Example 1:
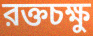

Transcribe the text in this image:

রক্তচক্ষু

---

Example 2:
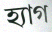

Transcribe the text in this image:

হ্যাগ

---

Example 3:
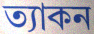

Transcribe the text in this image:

ত্যাকন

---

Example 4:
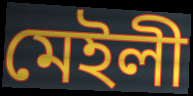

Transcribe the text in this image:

মেইলী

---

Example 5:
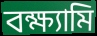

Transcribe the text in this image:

বক্ষ্যামি